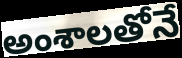
అంశాలతోనే